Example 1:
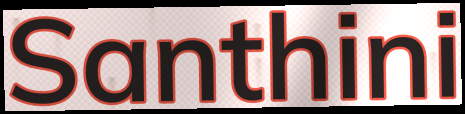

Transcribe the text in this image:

Santhini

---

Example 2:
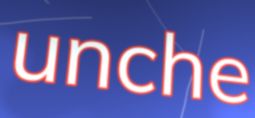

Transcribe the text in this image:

unche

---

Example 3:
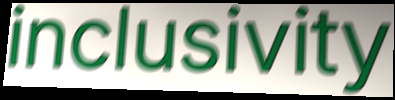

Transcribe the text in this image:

inclusivity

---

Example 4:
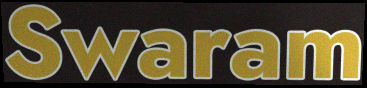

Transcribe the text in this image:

Swaram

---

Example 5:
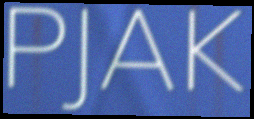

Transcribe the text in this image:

PJAK